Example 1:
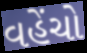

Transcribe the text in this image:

વહેંચો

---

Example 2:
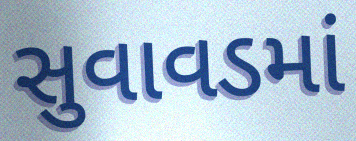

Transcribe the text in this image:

સુવાવડમાં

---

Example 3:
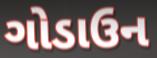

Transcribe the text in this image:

ગોડાઉન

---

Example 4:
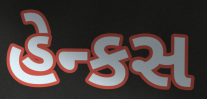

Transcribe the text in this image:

હેન્કસ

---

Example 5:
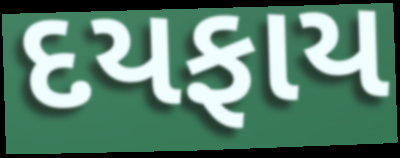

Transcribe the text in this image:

દયફાય